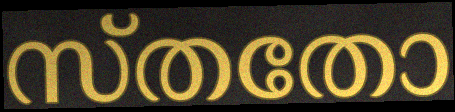
സ്തതോ